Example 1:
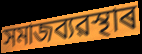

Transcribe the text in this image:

সমাজব্যৱস্থাৰ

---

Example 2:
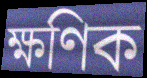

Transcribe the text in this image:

ক্ষণিক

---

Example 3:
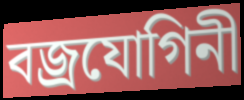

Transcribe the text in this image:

বজ্ৰযোগিনী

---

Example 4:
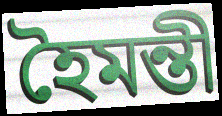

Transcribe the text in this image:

হৈমন্তী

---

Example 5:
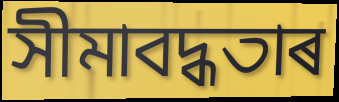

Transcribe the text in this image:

সীমাবদ্ধতাৰ